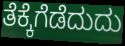
ತೆಕ್ಕೆಗೆಡೆದುದು